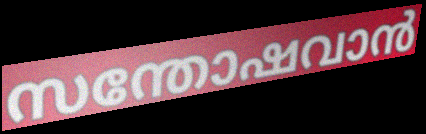
സന്തോഷവാൻ